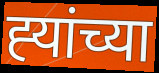
ह्‍यांच्या